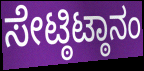
ಸೇಟ್ಠಿಟ್ಠಾನಂ